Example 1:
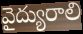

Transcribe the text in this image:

వైద్యురాలి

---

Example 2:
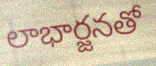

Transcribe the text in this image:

లాభార్జనతో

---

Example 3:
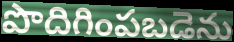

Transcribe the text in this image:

పొదిగింపబడెను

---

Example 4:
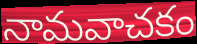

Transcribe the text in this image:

నామవాచకం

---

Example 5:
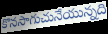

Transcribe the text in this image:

కొనసాగుచునేయున్నది